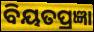
ବିୟତପ୍ରଜ୍ଞା